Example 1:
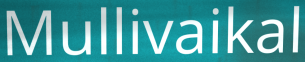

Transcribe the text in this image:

Mullivaikal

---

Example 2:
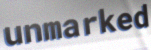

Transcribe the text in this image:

unmarked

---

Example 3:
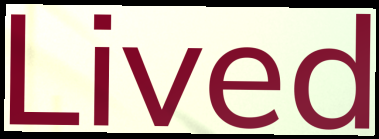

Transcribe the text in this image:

Lived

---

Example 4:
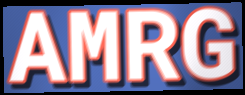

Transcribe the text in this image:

AMRG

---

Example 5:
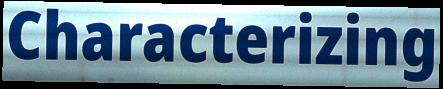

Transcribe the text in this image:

Characterizing